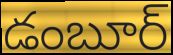
డంబూర్